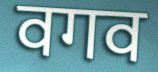
वगव